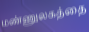
மண்ணுலகத்தை